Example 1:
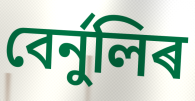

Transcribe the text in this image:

বেৰ্নুলিৰ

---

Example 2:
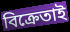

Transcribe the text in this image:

বিক্ৰেতাই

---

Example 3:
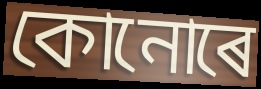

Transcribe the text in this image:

কোনোৰে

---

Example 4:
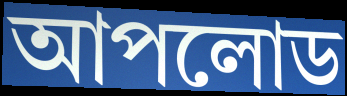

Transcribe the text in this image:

আপলোড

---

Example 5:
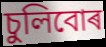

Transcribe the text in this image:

চুলিবোৰ